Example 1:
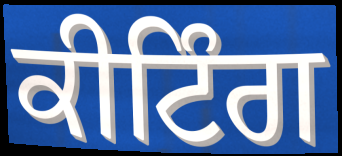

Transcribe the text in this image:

ਕੀਟਿੰਗ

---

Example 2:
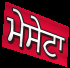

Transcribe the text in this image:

ਮੇਸੇਟਾ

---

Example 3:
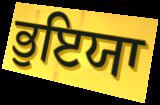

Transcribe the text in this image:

ਭੁਇਯਾ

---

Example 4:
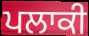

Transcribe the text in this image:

ਪਲਾਕੀ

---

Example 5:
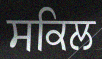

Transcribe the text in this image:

ਸਕਿਲ